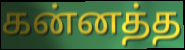
கன்னத்த